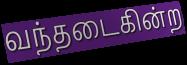
வந்தடைகின்ற